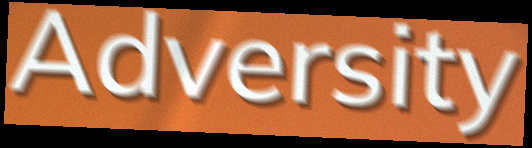
Adversity